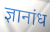
ज्ञानांध